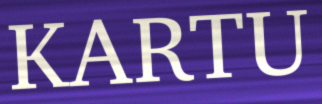
KARTU